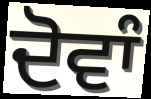
ਦੋਵਾੰ